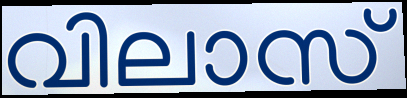
വിലാസ്